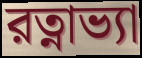
রত্নাভ্যা